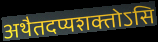
अथैतदप्यशक्तोऽसि